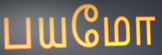
பயமோ